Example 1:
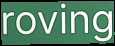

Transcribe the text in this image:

roving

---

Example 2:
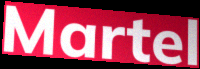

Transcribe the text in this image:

Martel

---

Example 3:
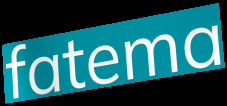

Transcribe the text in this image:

fatema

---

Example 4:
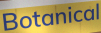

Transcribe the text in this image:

Botanical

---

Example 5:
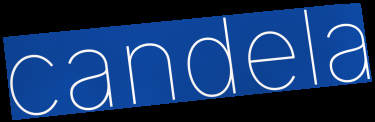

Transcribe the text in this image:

candela